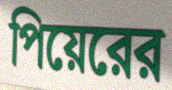
পিয়েরের